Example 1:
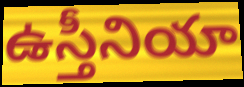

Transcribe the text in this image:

ఉస్తీనియా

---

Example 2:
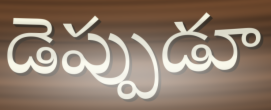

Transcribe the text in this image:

డెప్పుడూ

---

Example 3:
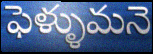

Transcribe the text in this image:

ఫెళ్ళుమనె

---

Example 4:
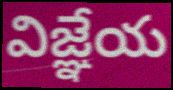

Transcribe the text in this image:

విజ్ఞేయ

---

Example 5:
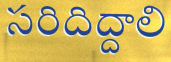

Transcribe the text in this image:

సరిదిద్దాలి